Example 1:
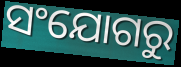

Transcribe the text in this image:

ସଂଯୋଗରୁ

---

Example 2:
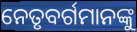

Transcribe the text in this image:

ନେତୃବର୍ଗମାନଙ୍କୁ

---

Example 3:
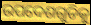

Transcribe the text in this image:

ଉପଦେଶଗୁଡିକୁ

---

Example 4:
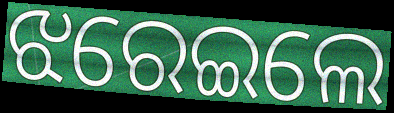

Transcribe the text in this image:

ଝରେଇଲେ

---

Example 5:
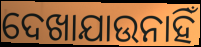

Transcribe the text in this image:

ଦେଖାଯାଉନାହିଁ